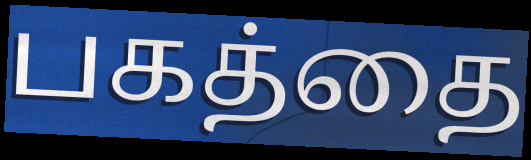
பகத்தை